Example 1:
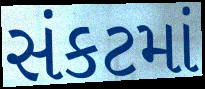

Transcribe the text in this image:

સંકટમાં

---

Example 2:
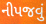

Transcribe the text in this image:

નીપજવું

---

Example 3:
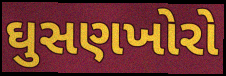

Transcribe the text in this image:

ઘુસણખોરો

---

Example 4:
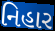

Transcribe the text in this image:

નિહાર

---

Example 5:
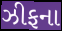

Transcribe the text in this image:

ઝીફના